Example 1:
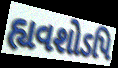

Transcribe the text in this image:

હ્યવશોઽપિ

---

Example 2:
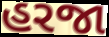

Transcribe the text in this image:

હરજા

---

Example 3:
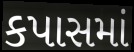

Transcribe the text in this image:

કપાસમાં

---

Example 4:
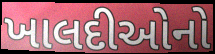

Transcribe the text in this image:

ખાલદીઓનો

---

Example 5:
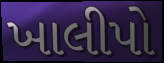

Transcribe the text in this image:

ખાલીપો